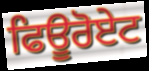
ਫਿਊਰੋਏਟ